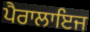
ਪੈਰਾਲਾਇਜ